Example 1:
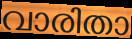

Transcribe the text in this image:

വാരിതാ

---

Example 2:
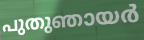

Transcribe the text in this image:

പുതുഞായർ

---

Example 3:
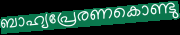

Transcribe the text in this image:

ബാഹ്യപ്രേരണകൊണ്ടു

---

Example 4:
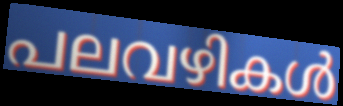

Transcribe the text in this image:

പലവഴികൾ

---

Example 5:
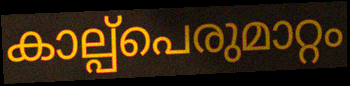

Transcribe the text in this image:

കാല്പ്പെരുമാറ്റം